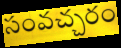
సంవచ్చరం